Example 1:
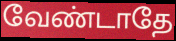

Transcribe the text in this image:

வேண்டாதே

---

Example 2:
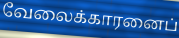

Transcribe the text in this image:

வேலைக்காரனைப்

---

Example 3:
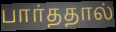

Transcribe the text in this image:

பார்ததால்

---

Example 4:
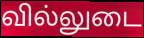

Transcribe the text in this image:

வில்லுடை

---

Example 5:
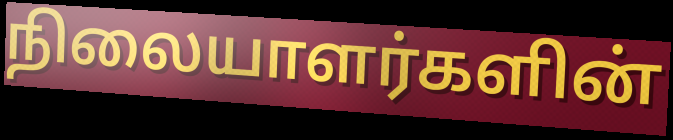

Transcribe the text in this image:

நிலையாளர்களின்